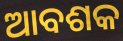
ଆବଶକ